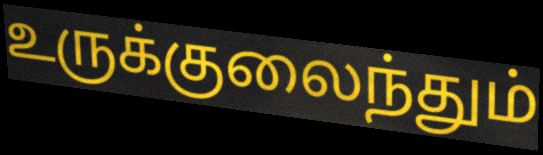
உருக்குலைந்தும்